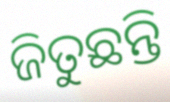
ଜିତୁଛନ୍ତି